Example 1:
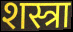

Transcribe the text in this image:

शस्त्रा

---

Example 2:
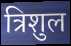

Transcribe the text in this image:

त्रिशुल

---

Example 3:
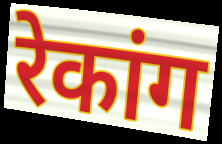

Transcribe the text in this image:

रेकांग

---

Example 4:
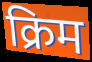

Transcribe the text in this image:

क्रिम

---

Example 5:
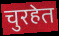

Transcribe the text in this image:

चुरहेत